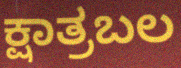
ಕ್ಷಾತ್ರಬಲ